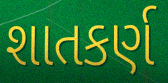
શાતકર્ણ